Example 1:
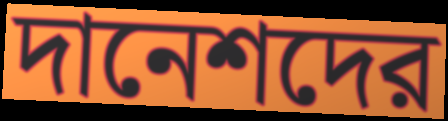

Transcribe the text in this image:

দানেশদের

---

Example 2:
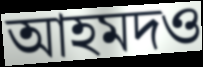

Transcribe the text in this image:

আহমদও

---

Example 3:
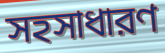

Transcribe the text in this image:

সহসাধারণ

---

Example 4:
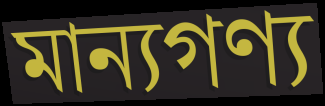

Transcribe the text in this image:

মান্যগণ্য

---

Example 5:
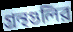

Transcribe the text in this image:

গ্রন্থগুলির